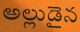
అల్లుడైన